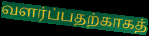
வளர்ப்பதற்காகத்